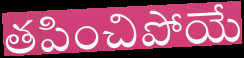
తపించిపోయే